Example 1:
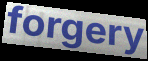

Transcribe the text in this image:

forgery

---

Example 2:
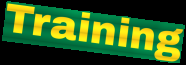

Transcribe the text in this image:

Training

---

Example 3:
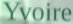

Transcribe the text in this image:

Yvoire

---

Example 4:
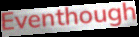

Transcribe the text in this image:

Eventhough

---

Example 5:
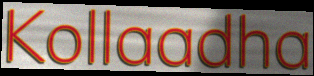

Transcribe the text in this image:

Kollaadha